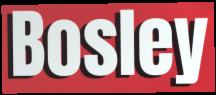
Bosley